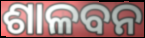
ଶାଳବନ